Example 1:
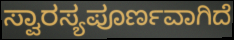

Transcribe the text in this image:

ಸ್ವಾರಸ್ಯಪೂರ್ಣವಾಗಿದೆ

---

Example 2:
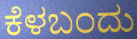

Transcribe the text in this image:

ಕೆಳಬಂದು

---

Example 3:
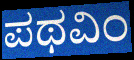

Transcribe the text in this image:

ಪಥವಿಂ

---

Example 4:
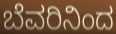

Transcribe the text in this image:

ಬೆವರಿನಿಂದ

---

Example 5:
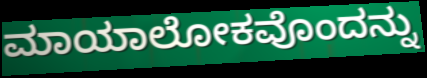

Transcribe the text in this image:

ಮಾಯಾಲೋಕವೊಂದನ್ನು